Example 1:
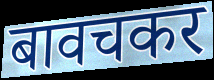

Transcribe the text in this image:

बावचकर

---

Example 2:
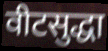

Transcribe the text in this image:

वीटसुद्धा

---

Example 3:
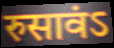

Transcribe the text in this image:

रुसावंऽ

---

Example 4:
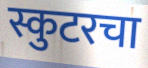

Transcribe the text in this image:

स्कुटरचा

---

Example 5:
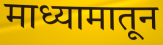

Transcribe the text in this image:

माध्यामातून